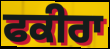
ਫਕੀਰਾ